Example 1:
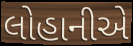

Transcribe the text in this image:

લોહાનીએ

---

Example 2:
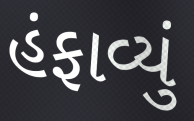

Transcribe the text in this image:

હંફાવ્યું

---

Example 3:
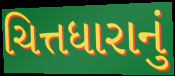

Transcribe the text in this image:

ચિત્તધારાનું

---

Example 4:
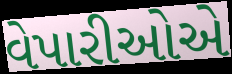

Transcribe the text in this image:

વેપારીઓએ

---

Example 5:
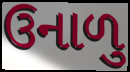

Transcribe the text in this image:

ઉનાળુ